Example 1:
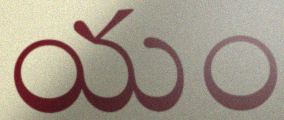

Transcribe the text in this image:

యం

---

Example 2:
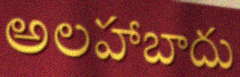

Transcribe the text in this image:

అలహాబాదు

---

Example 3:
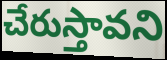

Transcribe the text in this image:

చేరుస్తావని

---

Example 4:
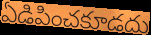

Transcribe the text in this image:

ఏడిపించకూడదు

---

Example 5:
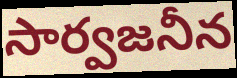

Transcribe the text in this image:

సార్వజనీన